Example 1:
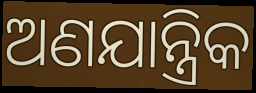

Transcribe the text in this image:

ଅଣଯାନ୍ତ୍ରିକ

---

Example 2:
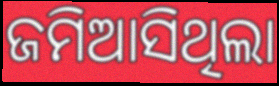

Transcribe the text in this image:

ଜମିଆସିଥିଲା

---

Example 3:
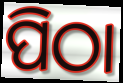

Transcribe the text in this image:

ପିଠା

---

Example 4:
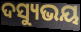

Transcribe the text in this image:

ଦସ୍ୟୁଭୟ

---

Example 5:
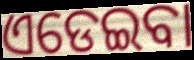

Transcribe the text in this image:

ଏଡେଇବା